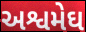
અશ્વમેઘ